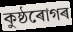
কুষ্ঠৰোগৰ